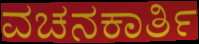
ವಚನಕಾರ್ತಿ